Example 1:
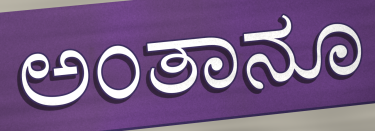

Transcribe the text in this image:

ಅಂತಾನೂ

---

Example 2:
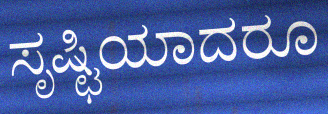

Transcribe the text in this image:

ಸೃಷ್ಟಿಯಾದರೂ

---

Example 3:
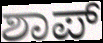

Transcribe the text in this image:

ಶಾಪ್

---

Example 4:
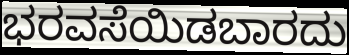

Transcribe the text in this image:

ಭರವಸೆಯಿಡಬಾರದು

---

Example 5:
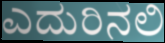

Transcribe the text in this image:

ಎದುರಿನಲಿ